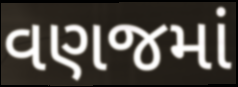
વણજમાં